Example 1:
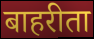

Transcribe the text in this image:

बाहरीता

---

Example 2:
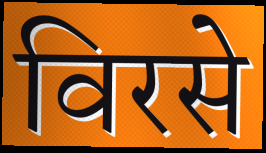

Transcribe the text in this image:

विरसे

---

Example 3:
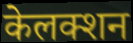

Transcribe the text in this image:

केलक्शन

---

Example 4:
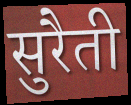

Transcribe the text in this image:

सुरैती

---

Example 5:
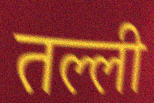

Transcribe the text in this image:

तल्ली